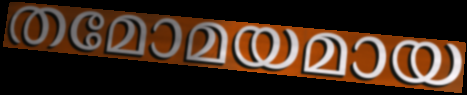
തമോമയമായ